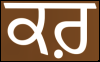
ਕਰ਼